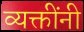
व्यक्तींनी